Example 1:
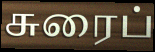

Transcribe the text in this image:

சுரைப்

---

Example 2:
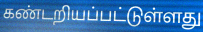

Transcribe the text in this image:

கண்டறியப்பட்டுள்ளது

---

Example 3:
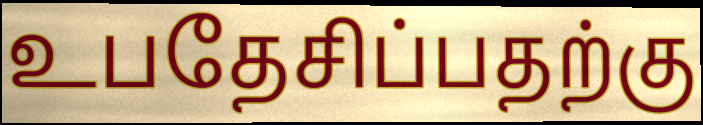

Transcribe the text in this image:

உபதேசிப்பதற்கு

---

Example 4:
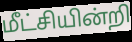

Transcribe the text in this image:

மீட்சியின்றி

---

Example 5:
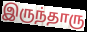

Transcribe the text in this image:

இருந்தாரு